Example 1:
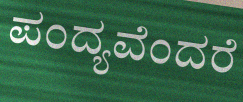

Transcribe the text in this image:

ಪಂದ್ಯವೆಂದರೆ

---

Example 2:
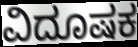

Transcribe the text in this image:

ವಿದೂಷಕ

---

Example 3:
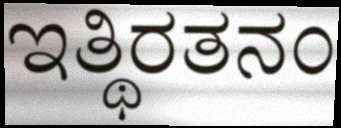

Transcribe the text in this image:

ಇತ್ಥಿರತನಂ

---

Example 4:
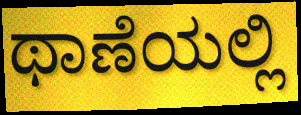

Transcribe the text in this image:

ಥಾಣೆಯಲ್ಲಿ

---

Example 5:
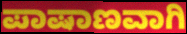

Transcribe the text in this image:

ಪಾಷಾಣವಾಗಿ